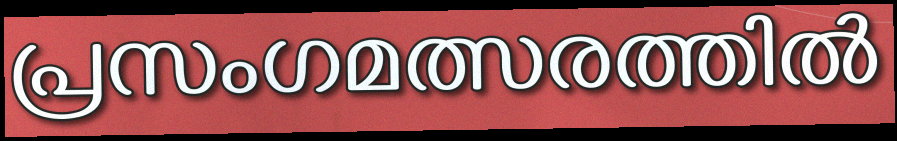
പ്രസംഗമത്സരത്തിൽ